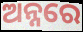
ଅନ୍ନରେ